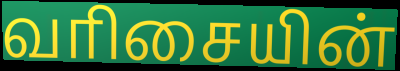
வரிசையின்